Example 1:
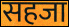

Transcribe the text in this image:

सहजा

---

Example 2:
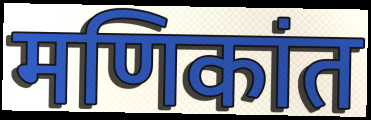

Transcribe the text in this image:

मणिकांत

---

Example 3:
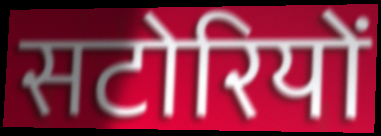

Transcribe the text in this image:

सटोरियों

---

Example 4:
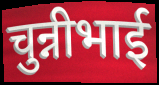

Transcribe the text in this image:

चुन्नीभाई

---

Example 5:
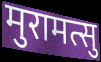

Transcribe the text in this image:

मुरामत्सु